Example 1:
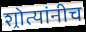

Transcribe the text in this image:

श्रोत्यांनीच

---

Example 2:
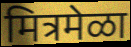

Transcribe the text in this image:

मित्रमेळा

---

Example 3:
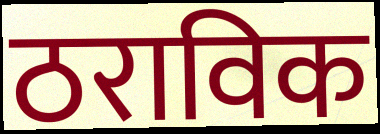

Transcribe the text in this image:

ठराविक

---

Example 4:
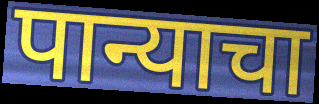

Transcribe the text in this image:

पान्याचा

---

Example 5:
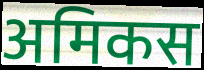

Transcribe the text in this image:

अमिकस